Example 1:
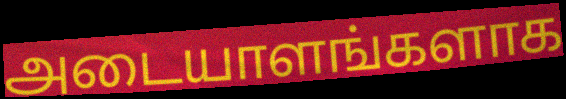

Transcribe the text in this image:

அடையாளங்களாக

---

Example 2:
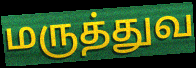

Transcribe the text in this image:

மருத்துவ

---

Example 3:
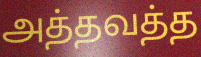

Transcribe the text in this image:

அத்தவத்த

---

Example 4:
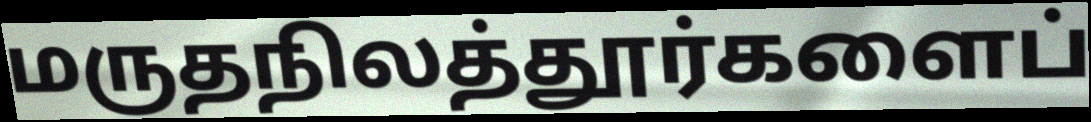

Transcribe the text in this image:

மருதநிலத்தூர்களைப்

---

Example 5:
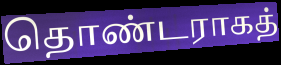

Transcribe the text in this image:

தொண்டராகத்